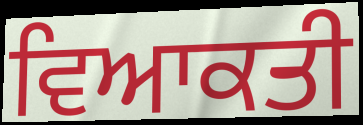
ਵਿਆਕਤੀ